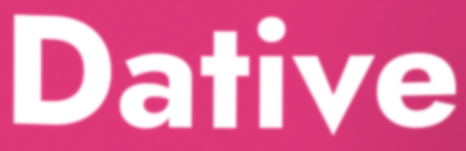
Dative